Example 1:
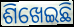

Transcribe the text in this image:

ଶିଖେଇଛି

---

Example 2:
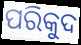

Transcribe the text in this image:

ପରିକୁଦ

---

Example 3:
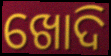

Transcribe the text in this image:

ଖୋଦି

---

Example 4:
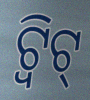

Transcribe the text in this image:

ଟ୍ୱିଟ୍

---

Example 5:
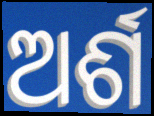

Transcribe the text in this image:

ଅର୍ଶ